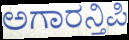
ಅಗಾರನ್ತಿಪಿ